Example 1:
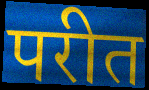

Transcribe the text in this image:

परीत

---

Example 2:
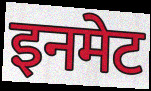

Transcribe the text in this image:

इनमेट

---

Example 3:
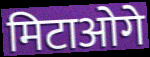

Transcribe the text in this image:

मिटाओगे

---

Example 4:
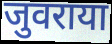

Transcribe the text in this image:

जुवराया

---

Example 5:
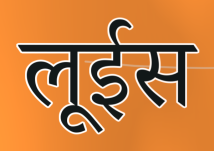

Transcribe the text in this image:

लूईस